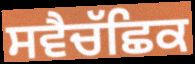
ਸਵੈਚੱਛਿਕ